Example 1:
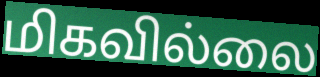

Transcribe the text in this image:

மிகவில்லை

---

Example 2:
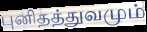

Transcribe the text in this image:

புனிதத்துவமும்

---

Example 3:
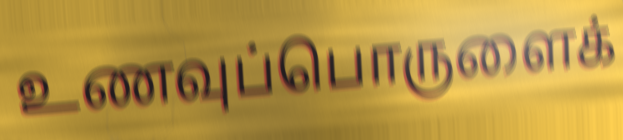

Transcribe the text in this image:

உணவுப்பொருளைக்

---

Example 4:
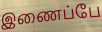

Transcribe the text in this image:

இணைப்பே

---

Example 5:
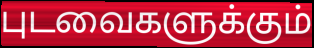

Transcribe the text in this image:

புடவைகளுக்கும்